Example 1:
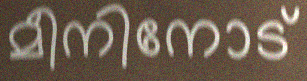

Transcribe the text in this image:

മീനിനോട്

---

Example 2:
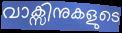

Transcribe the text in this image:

വാക്സിനുകളുടെ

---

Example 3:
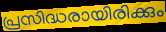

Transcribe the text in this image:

പ്രസിദ്ധരായിരിക്കും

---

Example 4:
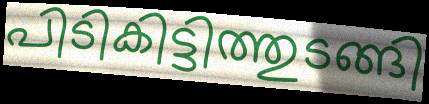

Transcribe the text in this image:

പിടികിട്ടിത്തുടങ്ങി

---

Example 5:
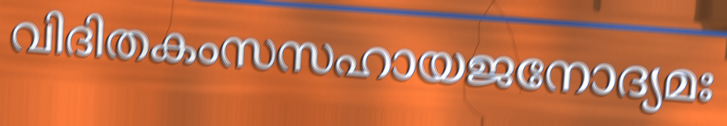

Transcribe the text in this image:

വിദിതകംസസഹായജനോദ്യമഃ